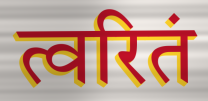
त्वरितं